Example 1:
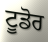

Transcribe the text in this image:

ਟੂਡੋਰ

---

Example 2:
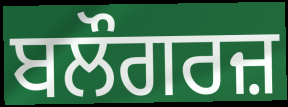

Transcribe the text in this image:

ਬਲੌਗਰਜ਼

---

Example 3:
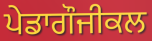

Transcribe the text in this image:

ਪੇਡਾਗੌਜੀਕਲ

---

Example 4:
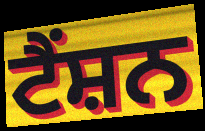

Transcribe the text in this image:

ਟੈਂਸ਼ਨ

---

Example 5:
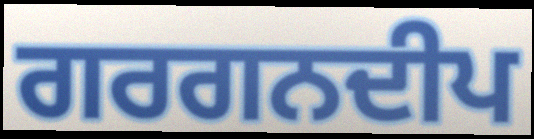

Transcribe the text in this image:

ਗਰਗਨਦੀਪ